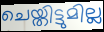
ചെയ്തിട്ടുമില്ല